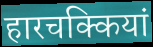
हारचक्कियां